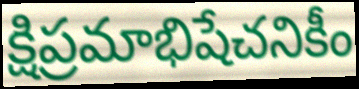
క్షిప్రమాభిషేచనికీం